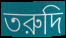
তরুদি